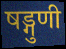
षड्गुणी